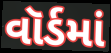
વૉર્ડમાં